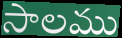
సాలము